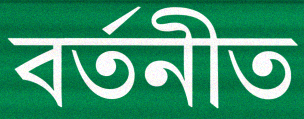
বৰ্তনীত